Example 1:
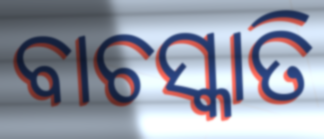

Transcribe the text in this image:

ବାଚସ୍କାତି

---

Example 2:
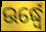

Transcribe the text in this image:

ଊର୍ଦ୍ଧ୍ୱେ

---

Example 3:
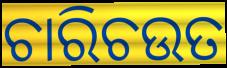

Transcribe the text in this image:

ଚାରିଚଉତ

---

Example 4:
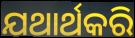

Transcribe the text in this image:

ଯଥାର୍ଥକରି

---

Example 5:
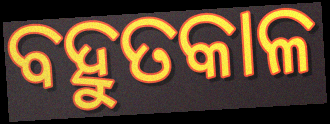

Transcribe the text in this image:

ବହୁତକାଳ